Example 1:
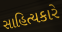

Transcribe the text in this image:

સાહિત્યકારે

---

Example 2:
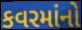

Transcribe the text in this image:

કવરમાંનો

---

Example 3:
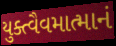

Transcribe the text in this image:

યુક્ત્વૈવમાત્માનં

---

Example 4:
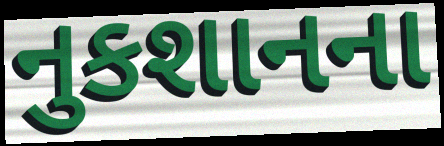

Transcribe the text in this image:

નુકશાનના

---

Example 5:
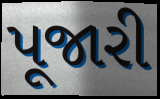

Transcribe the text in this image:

પૂજારી